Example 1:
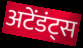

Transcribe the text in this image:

अटेंडंट्स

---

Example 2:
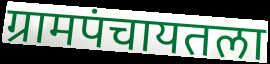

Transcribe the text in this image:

ग्रामपंचायतला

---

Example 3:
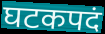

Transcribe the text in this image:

घटकपदं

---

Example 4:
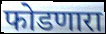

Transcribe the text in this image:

फोडणारा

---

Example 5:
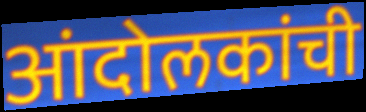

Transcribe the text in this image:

आंदोलकांची